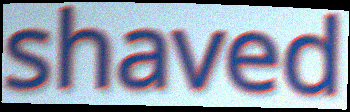
shaved